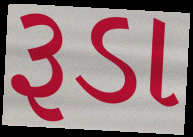
રૂડા